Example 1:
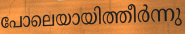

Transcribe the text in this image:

പോലെയായിത്തീർന്നു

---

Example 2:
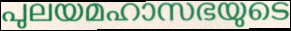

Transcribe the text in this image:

പുലയമഹാസഭയുടെ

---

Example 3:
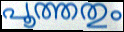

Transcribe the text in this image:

പൂത്തതും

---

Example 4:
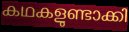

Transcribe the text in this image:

കഥകളുണ്ടാക്കി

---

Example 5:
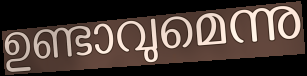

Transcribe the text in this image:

ഉണ്ടാവുമെന്നു